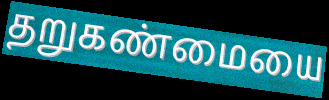
தறுகண்மையை